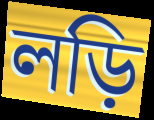
লড়ি